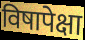
विषापेक्षा